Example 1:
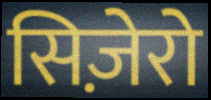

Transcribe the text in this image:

सिज़ेरो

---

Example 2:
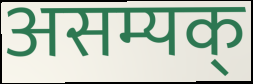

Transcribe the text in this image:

असम्यक्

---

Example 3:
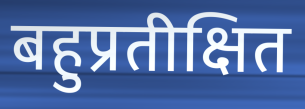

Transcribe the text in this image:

बहुप्रतीक्षित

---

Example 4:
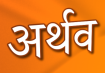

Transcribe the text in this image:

अर्थव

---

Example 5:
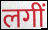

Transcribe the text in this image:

लगीं